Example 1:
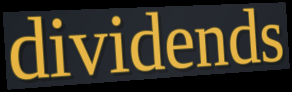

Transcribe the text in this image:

dividends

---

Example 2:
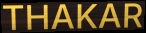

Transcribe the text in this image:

THAKAR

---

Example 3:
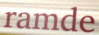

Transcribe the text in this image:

ramde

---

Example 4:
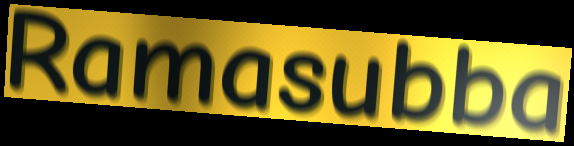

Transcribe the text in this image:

Ramasubba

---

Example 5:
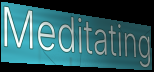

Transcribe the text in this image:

Meditating